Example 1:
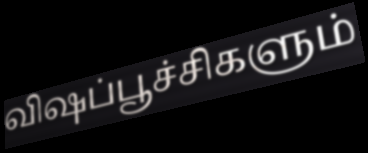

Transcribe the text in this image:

விஷப்பூச்சிகளும்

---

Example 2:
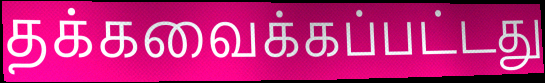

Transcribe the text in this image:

தக்கவைக்கப்பட்டது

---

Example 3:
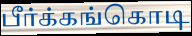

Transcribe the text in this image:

பீர்க்கங்கொடி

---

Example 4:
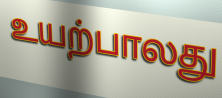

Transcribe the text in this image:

உயற்பாலது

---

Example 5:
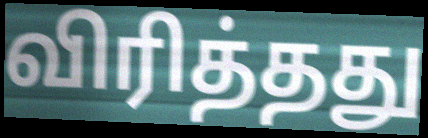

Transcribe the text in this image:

விரித்தது